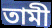
তামী